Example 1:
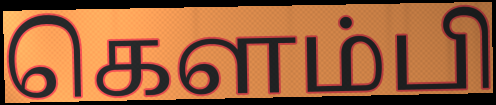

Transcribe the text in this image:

கெளம்பி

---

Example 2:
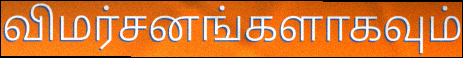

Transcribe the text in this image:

விமர்சனங்களாகவும்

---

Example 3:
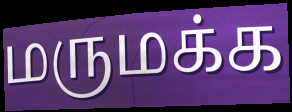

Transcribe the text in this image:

மருமக்க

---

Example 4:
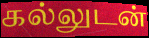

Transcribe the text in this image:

கல்லுடன்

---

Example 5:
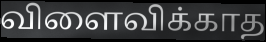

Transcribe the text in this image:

விளைவிக்காத